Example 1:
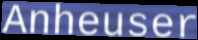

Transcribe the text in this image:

Anheuser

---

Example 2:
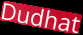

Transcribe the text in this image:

Dudhat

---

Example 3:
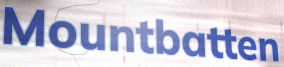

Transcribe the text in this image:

Mountbatten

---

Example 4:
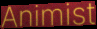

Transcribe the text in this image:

Animist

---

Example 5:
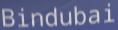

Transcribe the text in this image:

Bindubai